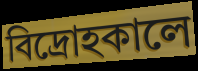
বিদ্রোহকালে